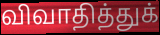
விவாதித்துக்